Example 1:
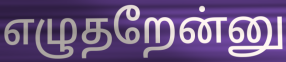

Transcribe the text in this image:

எழுதறேன்னு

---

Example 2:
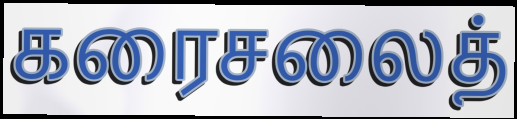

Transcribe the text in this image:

கரைசலைத்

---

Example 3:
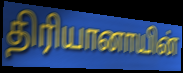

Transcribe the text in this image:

திரியானாயின்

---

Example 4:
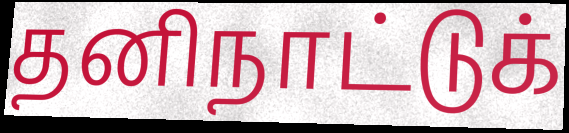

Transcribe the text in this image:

தனிநாட்டுக்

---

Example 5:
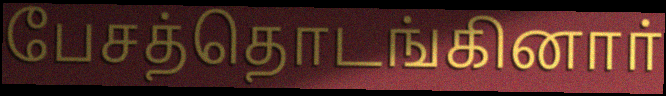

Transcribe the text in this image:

பேசத்தொடங்கினார்